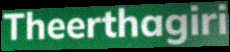
Theerthagiri